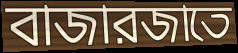
বাজারজাতে